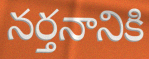
నర్తనానికి